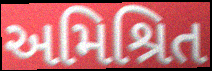
અમિશ્રિત